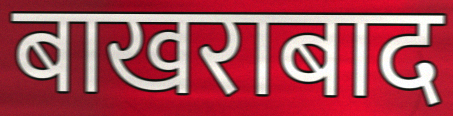
बाखराबाद